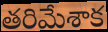
తరిమేశాక